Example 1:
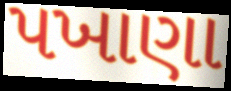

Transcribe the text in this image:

પખાણા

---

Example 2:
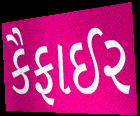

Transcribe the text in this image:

કૈફાઈર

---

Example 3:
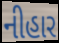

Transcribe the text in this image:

નીહાર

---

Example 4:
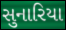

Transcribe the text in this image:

સુનારિયા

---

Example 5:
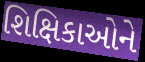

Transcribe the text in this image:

શિક્ષિકાઓને